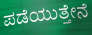
ಪಡೆಯುತ್ತೇನೆ